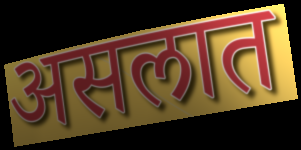
असलात